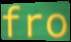
fro